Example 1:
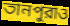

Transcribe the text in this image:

তানপুরাও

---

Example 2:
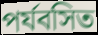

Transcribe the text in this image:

পর্যবসিত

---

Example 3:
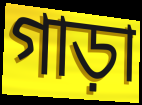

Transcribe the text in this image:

গাড়া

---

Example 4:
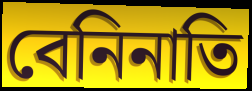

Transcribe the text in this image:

বেনিনাতি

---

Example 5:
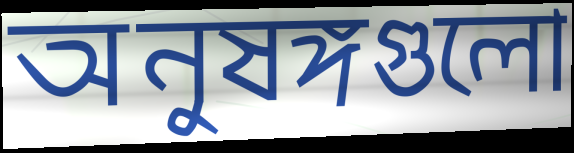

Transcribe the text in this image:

অনুষঙ্গগুলো